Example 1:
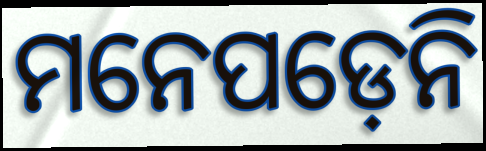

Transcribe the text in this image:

ମନେପଡ଼େନି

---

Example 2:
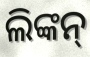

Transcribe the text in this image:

ଲିଙ୍କନ୍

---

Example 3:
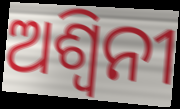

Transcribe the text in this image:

ଅଶ୍ୱିନୀ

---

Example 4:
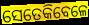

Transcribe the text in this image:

ସେତେକିବେଳେ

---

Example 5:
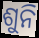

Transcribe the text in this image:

ଶୁନି